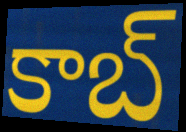
కాబ్